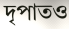
দৃপাতও